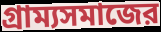
গ্রাম্যসমাজের